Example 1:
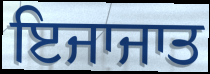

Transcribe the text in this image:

ਇਜਾਜਾਤ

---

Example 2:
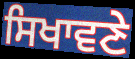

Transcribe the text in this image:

ਸਿਖਾਵਣੇ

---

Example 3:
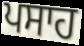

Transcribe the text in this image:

ਪਸਾਹ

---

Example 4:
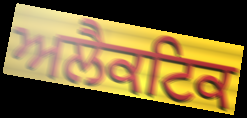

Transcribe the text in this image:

ਅਲੈਕਟਿਕ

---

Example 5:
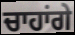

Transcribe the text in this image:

ਚਾਹਾਂਗੇ